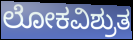
ಲೋಕವಿಶ್ರುತ